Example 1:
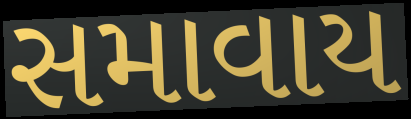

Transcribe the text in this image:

સમાવાય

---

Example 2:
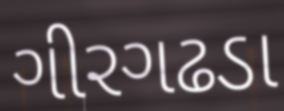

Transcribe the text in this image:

ગીરગઢડા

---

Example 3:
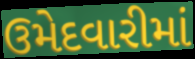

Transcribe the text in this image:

ઉમેદવારીમાં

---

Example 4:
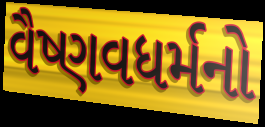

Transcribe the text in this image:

વૈષ્ણવધર્મનો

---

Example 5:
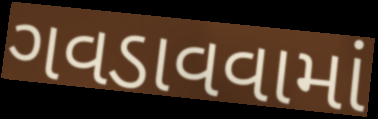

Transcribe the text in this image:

ગવડાવવામાં